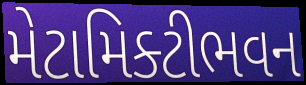
મેટામિક્ટીભવન